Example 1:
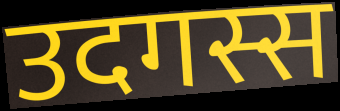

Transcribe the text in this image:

उदगस्स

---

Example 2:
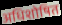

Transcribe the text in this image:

अधिशोषित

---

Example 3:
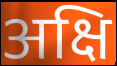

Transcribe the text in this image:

अक्षि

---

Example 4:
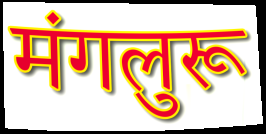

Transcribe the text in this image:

मंगलुरू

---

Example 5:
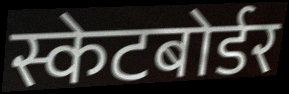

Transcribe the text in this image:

स्केटबोर्डर